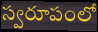
స్వరూపంలో